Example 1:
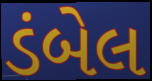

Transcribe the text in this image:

ડંબેલ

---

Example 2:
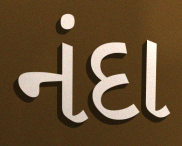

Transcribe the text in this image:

નંદા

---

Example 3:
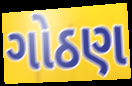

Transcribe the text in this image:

ગોઠણ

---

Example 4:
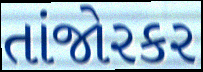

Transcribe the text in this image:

તાંજોરકર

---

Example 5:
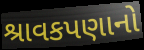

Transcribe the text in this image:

શ્રાવકપણાનો